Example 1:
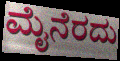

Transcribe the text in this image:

ಮೈನೆರದು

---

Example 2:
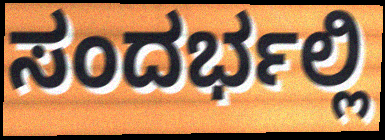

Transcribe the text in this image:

ಸಂದರ್ಭಲ್ಲಿ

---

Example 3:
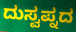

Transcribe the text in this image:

ದುಸ್ವಪ್ನದ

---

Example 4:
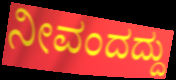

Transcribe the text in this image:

ನೀವಂದದ್ದು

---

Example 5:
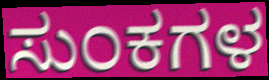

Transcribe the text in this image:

ಸುಂಕಗಳ